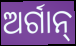
ଅର୍ଗାନ୍